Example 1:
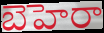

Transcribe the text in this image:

బెహెరా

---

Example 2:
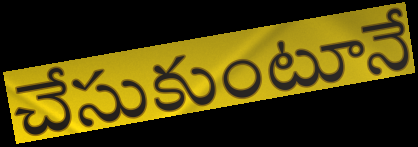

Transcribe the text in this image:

చేసుకుంటూనే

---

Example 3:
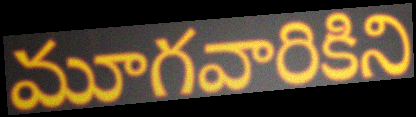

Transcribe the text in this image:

మూగవారికిని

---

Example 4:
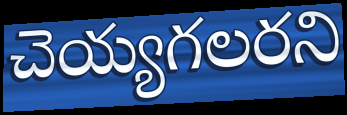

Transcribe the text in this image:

చెయ్యగలరని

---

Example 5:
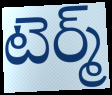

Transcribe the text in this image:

టెర్మ్